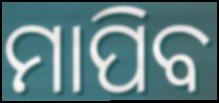
ମାପିବ